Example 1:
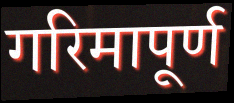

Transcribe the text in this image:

गरिमापूर्ण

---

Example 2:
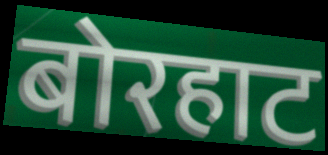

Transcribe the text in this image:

बोरहाट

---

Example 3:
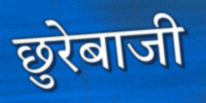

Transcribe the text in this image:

छुरेबाजी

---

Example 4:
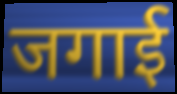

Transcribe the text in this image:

जगाई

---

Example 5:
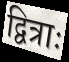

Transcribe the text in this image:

द्वित्राः